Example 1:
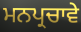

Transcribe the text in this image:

ਮਨਪ੍ਰਚਾਵੇ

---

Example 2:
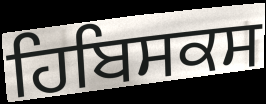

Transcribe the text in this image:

ਹਿਬਿਸਕਸ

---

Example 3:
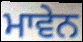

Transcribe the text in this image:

ਮਾਵੇਨ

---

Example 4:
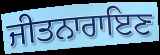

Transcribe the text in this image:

ਜੀਤਨਾਰਾਇਣ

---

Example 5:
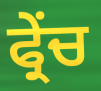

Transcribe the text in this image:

ਫ੍ਰੇੰਚ